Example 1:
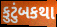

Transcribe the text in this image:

કુટુંબકથા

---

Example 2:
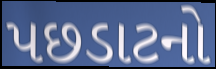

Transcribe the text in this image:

પછડાટનો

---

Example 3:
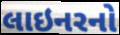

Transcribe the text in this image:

લાઇનરનો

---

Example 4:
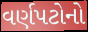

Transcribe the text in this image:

વર્ણપટોનો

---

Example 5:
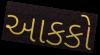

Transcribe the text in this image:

આકકો